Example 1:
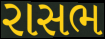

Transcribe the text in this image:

રાસભ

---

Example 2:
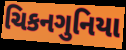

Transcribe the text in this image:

ચિકનગુનિયા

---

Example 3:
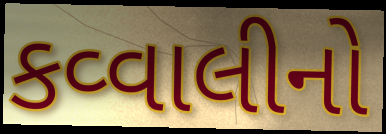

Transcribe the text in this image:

કવ્વાલીનો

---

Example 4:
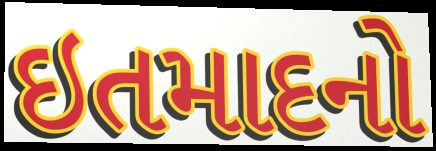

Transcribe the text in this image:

ઇતમાદનો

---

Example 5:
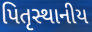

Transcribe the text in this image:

પિતૃસ્થાનીય